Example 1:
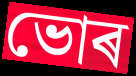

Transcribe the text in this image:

ভোৰ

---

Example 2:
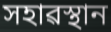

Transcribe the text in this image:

সহাৱস্থান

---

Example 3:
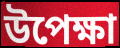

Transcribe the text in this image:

উপেক্ষা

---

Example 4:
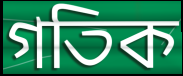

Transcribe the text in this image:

গতিক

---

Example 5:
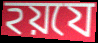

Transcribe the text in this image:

হয়যে